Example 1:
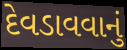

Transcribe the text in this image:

દેવડાવવાનું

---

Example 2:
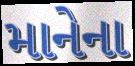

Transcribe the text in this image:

માનેના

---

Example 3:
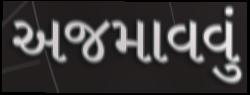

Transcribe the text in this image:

અજમાવવું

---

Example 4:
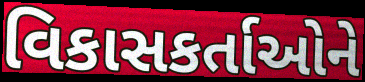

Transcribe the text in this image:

વિકાસકર્તાઓને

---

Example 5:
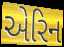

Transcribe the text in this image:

એરિન